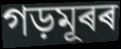
গড়মূৰৰ